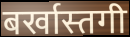
बर्खास्तगी